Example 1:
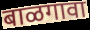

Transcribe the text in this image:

बाळगावा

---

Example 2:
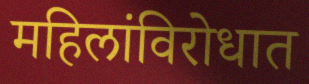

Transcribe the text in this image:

महिलांविरोधात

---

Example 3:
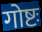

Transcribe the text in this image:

गोष्टः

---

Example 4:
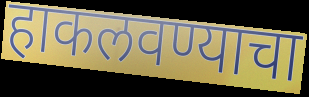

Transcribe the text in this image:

हाकलवण्याचा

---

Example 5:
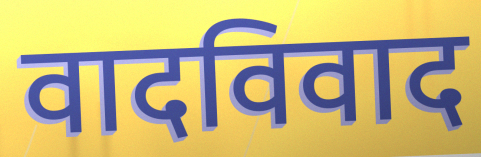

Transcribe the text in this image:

वादविवाद